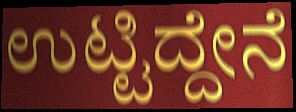
ಉಟ್ಟಿದ್ದೇನೆ